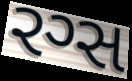
રગ્સ